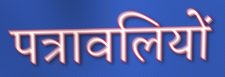
पत्रावलियों